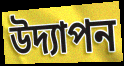
উদ্যাপন